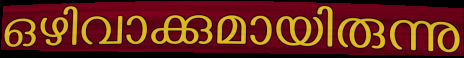
ഒഴിവാക്കുമായിരുന്നു